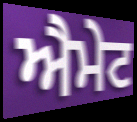
ਐਮੇਟ